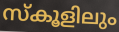
സ്കൂളിലും